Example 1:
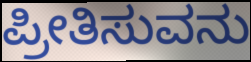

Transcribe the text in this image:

ಪ್ರೀತಿಸುವನು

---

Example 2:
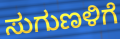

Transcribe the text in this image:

ಸುಗುಣಳಿಗೆ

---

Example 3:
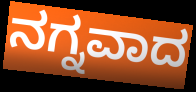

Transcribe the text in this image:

ನಗ್ನವಾದ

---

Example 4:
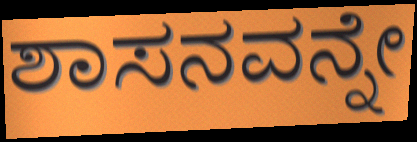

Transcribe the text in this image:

ಶಾಸನವನ್ನೇ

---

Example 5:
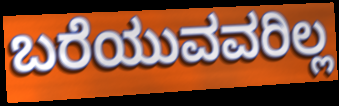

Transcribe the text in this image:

ಬರೆಯುವವರಿಲ್ಲ